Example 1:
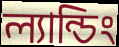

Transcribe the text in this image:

ল্যান্ডিং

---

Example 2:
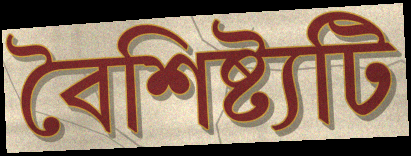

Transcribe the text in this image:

বৈশিষ্ট্যটি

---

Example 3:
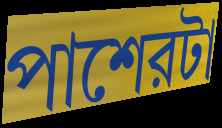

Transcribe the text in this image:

পাশেরটা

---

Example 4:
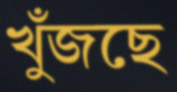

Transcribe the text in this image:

খুঁজছে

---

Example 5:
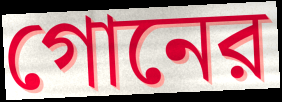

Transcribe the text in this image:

গোনের